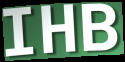
IHB